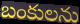
బంకులను